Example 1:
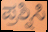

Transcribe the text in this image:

ಪ್ರಶ್ನಿಸಿ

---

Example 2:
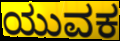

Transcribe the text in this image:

ಯುವಕ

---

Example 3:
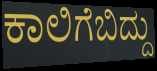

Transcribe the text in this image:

ಕಾಲಿಗೆಬಿದ್ದು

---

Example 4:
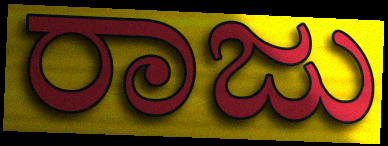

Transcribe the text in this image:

ರಾಜು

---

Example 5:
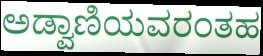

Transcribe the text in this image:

ಅಡ್ವಾಣಿಯವರಂತಹ